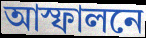
আস্ফালনে